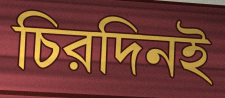
চিরদিনই